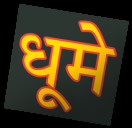
धूमे